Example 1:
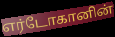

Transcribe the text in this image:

எர்டோகானின்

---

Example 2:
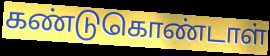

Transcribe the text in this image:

கண்டுகொண்டாள்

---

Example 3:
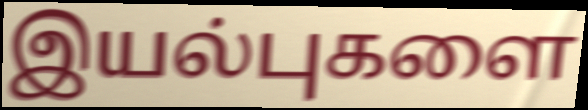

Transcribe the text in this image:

இயல்புகளை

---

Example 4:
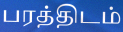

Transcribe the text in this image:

பரத்திடம்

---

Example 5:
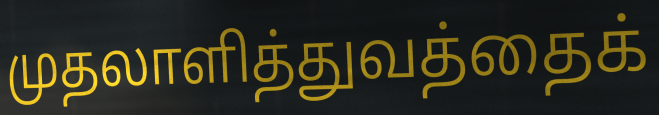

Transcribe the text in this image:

முதலாளித்துவத்தைக்